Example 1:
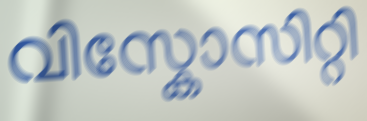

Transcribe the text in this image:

വിസ്കോസിറ്റി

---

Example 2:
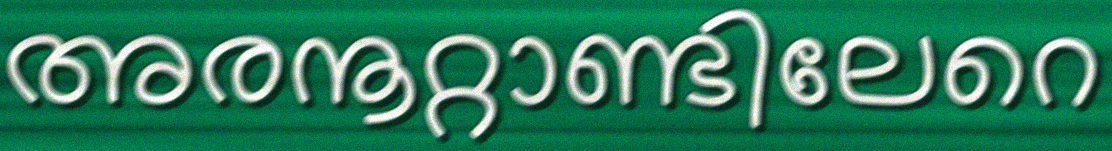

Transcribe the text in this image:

അരനൂറ്റാണ്ടിലേറെ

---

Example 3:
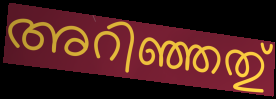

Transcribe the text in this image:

അറിഞ്ഞതു്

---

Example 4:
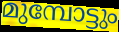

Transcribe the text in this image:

മുമ്പോട്ടും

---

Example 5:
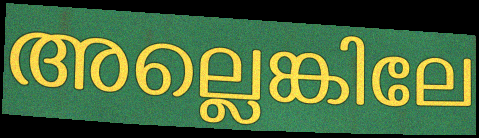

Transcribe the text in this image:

അല്ലെങ്കിലേ